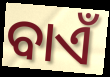
ବାଏଁ